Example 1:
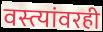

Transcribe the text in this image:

वस्त्यांवरही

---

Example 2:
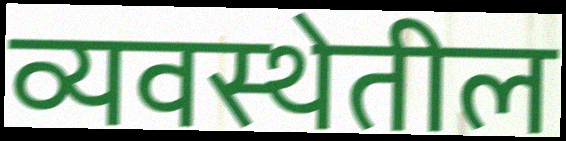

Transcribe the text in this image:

व्यवस्थेतील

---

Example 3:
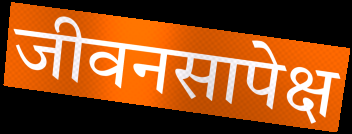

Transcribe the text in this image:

जीवनसापेक्ष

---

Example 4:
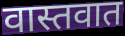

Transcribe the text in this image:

वास्तवात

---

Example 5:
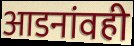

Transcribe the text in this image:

आडनांवही